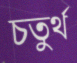
চতুৰ্থ